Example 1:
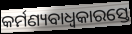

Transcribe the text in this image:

କର୍ମଣ୍ୟବାଧ୍ୱକାରସ୍ତେ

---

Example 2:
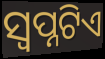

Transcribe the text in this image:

ସ୍ବପ୍ନଟିଏ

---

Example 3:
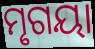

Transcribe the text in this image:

ମୃଗୟା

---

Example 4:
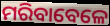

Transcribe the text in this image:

ମରିବାବେଳେ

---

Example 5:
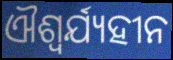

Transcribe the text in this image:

ଐଶ୍ଵର୍ଯ୍ୟହୀନ